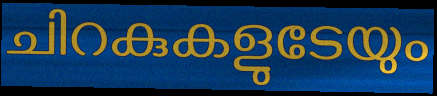
ചിറകുകളുടേയും